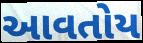
આવતોય